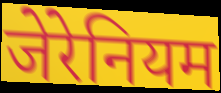
जेरेनियम